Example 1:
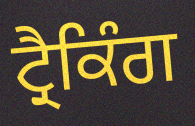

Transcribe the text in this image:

ਟ੍ਰੈਕਿੰਗ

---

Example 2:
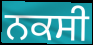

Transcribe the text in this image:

ਨਕਸੀ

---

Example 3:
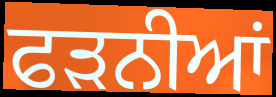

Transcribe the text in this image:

ਫੜਨੀਆਂ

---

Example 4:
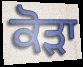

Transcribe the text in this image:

ਕੋੜਾ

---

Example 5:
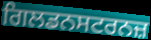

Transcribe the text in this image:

ਗਿਲਡਨਸਟਰਨਜ਼